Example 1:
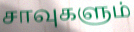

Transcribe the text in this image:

சாவுகளும்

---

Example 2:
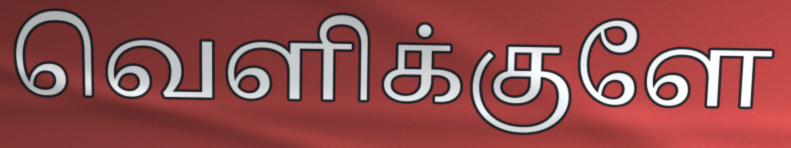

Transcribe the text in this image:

வெளிக்குளே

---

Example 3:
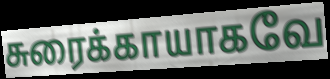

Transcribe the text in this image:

சுரைக்காயாகவே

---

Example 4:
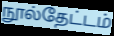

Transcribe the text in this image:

நூல்தேட்டம்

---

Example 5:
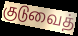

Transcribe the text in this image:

குடுவைத்